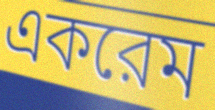
একরেম